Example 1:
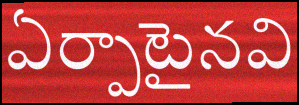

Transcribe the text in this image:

ఏర్పాటైనవి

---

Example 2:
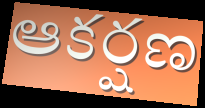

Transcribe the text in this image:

ఆకర్షణ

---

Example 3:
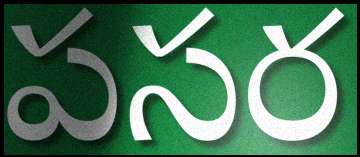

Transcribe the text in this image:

పసర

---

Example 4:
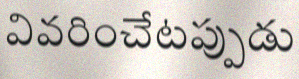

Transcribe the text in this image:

వివరించేటప్పుడు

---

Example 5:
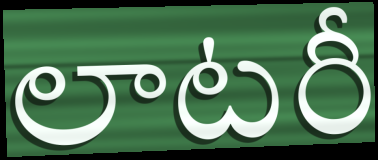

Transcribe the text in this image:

లాటరీ